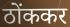
ठोंककर